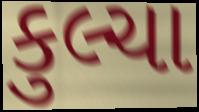
કુલ્ચા